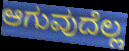
ಆಗುವುದೆಲ್ಲ